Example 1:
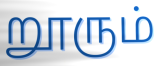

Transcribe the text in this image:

றூரும்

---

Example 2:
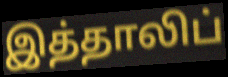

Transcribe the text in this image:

இத்தாலிப்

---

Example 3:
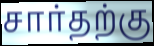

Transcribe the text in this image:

சார்தற்கு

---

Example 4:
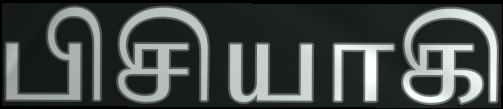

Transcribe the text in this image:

பிசியாகி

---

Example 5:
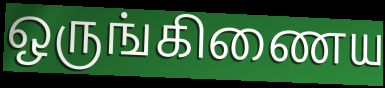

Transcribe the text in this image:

ஒருங்கிணைய